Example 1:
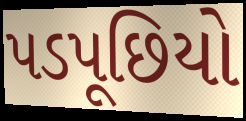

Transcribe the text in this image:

પડપૂછિયો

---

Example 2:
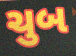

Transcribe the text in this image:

ચુબ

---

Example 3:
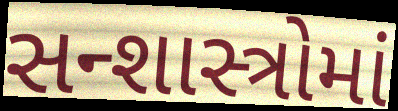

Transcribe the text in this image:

સન્શાસ્ત્રોમાં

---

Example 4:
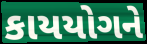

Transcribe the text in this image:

કાયયોગને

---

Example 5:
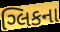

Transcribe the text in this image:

ગ્લિકના